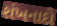
શંખનાદો